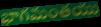
భాగమంతయు